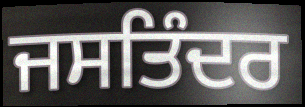
ਜਸਤਿੰਦਰ